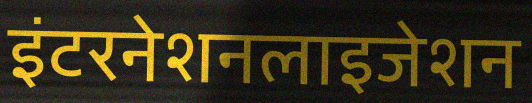
इंटरनेशनलाइजेशन